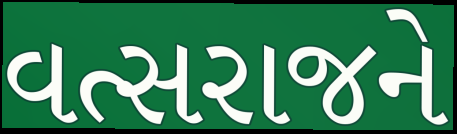
વત્સરાજને